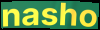
nasho